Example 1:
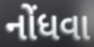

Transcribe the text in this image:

નોંધવા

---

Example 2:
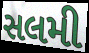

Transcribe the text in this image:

સલમી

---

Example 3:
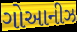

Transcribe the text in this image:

ગોઆનીઝ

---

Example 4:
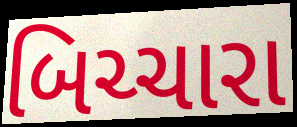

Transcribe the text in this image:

બિચ્ચારા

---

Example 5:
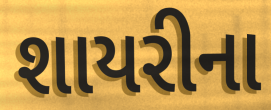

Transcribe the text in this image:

શાયરીના